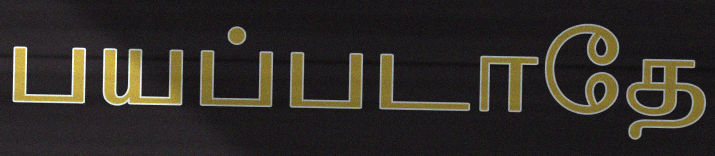
பயப்படாதே